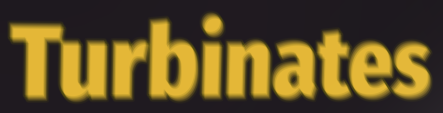
Turbinates